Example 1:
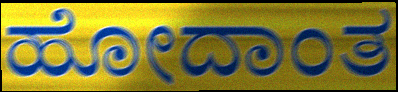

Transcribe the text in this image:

ಹೋದಾಂತ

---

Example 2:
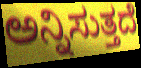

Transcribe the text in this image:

ಅನ್ನಿಸುತ್ತದೆ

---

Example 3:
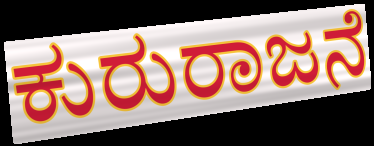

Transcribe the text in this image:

ಕುರುರಾಜನೆ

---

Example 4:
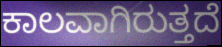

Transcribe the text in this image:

ಕಾಲವಾಗಿರುತ್ತದೆ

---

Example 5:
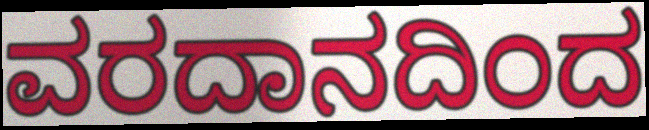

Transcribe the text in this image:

ವರದಾನದಿಂದ